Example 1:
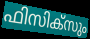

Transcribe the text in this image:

ഫിസിക്സും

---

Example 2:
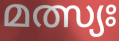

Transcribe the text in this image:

മത്സ്യഃ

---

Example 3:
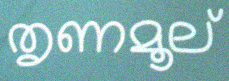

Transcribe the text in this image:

തൃണമൂല്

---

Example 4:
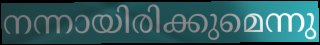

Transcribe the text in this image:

നന്നായിരിക്കുമെന്നു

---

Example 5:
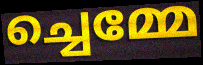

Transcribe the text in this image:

ച്ചെമ്മേ